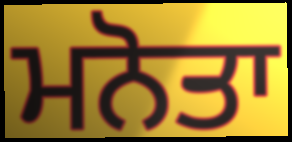
ਮਨੋਤਾ